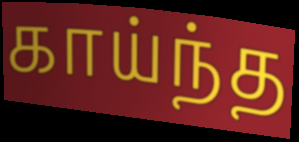
காய்ந்த